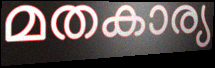
മതകാര്യ